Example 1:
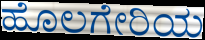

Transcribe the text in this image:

ಹೊಲಗೇರಿಯ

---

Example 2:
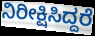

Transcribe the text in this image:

ನಿರೀಕ್ಷಿಸಿದ್ದರೆ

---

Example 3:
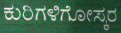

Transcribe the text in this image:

ಕುರಿಗಳಿಗೋಸ್ಕರ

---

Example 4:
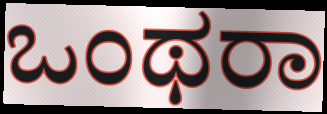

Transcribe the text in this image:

ಒಂಥರಾ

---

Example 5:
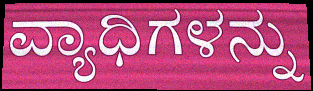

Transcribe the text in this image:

ವ್ಯಾಧಿಗಳನ್ನು